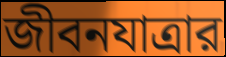
জীবনযাত্রার